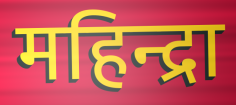
महिन्द्रा